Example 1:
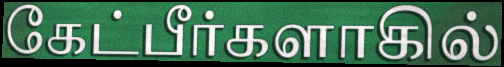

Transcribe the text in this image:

கேட்பீர்களாகில்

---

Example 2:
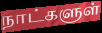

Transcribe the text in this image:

நாட்களுள்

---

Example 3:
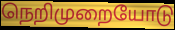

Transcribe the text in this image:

நெறிமுறையோடு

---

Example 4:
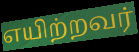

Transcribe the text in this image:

எயிற்றவர்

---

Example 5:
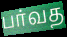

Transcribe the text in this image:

பர்வத